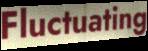
Fluctuating